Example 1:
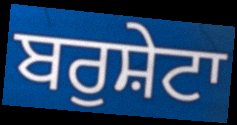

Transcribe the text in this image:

ਬਰੁਸ਼ੇਟਾ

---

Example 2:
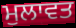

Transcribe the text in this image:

ਮੁਲਾਵਤ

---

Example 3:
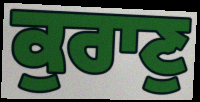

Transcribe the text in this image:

ਕੁਰਾਣੁ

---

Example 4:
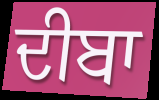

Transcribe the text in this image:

ਦੀਬਾ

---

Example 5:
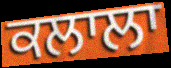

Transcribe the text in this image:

ਕਲਾਲਾ